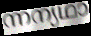
ന്നന്യഥാ